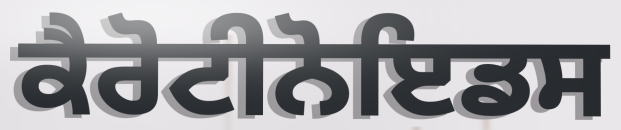
ਕੈਰੋਟੀਨੋਇਡਸ